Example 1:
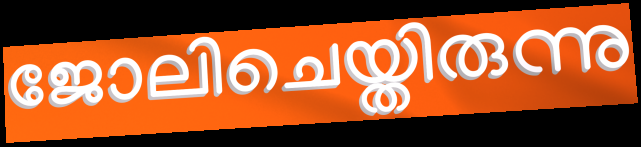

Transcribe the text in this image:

ജോലിചെയ്തിരുന്നു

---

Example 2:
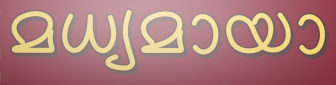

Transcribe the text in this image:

മധ്യമായാ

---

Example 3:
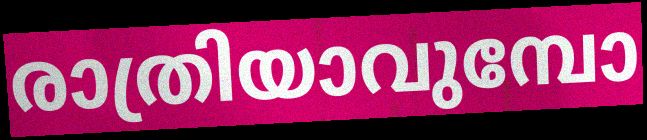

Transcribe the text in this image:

രാത്രിയാവുമ്പോ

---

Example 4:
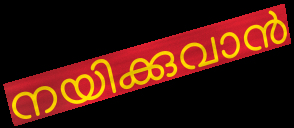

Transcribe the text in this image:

നയിക്കുവാൻ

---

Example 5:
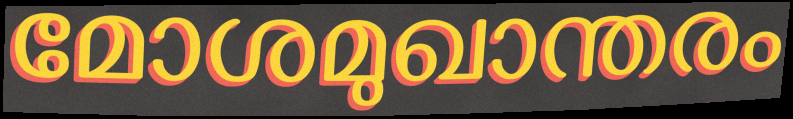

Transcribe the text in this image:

മോശമുഖാന്തരം